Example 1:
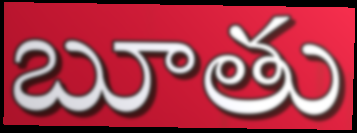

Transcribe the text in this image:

బూతు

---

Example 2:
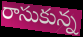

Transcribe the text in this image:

రాసుకున్న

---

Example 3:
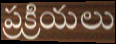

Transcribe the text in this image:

ప్రక్రియలు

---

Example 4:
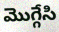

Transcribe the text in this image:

మొగ్గేసి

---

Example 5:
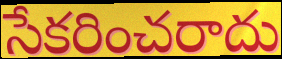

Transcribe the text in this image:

సేకరించరాదు